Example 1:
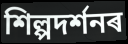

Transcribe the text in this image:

শিল্পদৰ্শনৰ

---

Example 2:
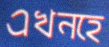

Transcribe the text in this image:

এখনহে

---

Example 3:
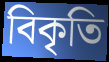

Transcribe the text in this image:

বিকৃতি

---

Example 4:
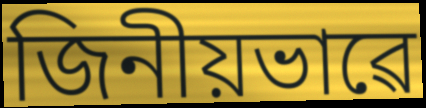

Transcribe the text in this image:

জিনীয়ভাৱে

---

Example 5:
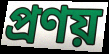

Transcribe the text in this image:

প্ৰণয়